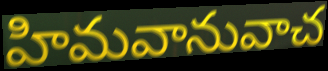
హిమవానువాచ